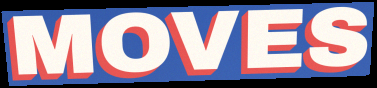
MOVES